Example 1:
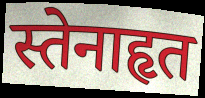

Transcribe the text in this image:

स्तेनाहृत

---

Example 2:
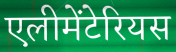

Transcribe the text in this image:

एलीमेंटेरियस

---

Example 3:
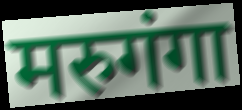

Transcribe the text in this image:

मरुगंगा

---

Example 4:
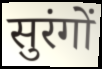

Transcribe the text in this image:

सुरंगों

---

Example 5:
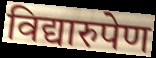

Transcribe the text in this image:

विद्यारुपेण